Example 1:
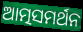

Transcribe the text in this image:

ଆତ୍ମସମର୍ଥନ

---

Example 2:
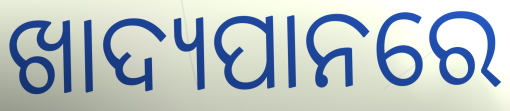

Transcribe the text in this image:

ଖାଦ୍ୟପାନରେ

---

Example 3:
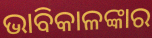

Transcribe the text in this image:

ଭାବିକାଳଙ୍କାର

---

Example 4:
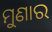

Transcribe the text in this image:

ମୁଣାର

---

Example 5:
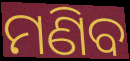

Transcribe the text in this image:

ମଣିବ